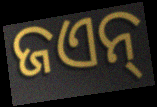
ଜଏନ୍